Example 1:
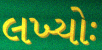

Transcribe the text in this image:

લખ્યોઃ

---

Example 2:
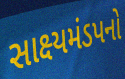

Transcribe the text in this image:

સાક્ષ્યમંડપનો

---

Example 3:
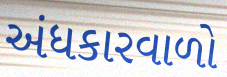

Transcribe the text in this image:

અંધકારવાળો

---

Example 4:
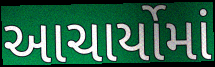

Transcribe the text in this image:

આચાર્યોમાં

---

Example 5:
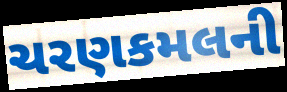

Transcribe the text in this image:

ચરણકમલની